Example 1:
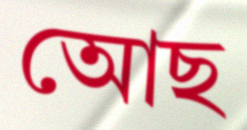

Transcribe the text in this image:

আেছ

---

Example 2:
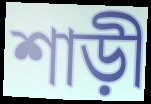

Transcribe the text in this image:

শাড়ী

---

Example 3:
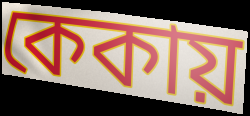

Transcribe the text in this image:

কেকায়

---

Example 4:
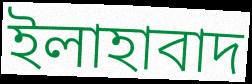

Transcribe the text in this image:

ইলাহাবাদ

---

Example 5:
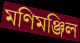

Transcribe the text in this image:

মণিমঞ্জিল